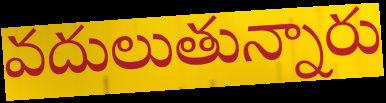
వదులుతున్నారు